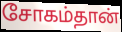
சோகம்தான்